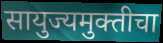
सायुज्यमुक्तीचा